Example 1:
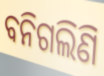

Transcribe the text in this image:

ବନିଗଲିଣି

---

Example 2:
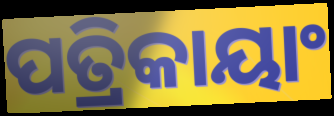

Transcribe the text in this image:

ପତ୍ରିକାୟାଂ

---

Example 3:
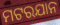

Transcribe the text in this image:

ମଟରଯାନ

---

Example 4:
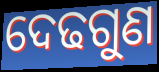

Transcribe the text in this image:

ଦେଢଗୁଣ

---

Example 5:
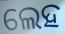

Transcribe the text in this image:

ଲେହ